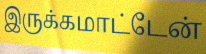
இருக்கமாட்டேன்